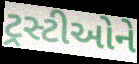
ટ્રસ્ટીઓને